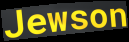
Jewson